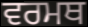
ਵਰਮਥ